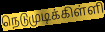
நெடுமுடிக்கிள்ளி